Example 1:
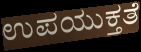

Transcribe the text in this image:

ಉಪಯುಕ್ತತೆ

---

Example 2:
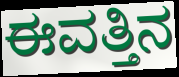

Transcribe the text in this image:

ಈವತ್ತಿನ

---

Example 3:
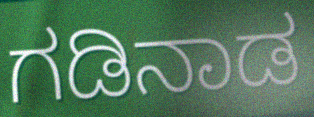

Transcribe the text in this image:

ಗಡಿನಾಡ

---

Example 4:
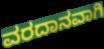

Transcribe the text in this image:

ವರದಾನವಾಗಿ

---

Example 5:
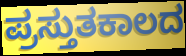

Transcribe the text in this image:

ಪ್ರಸ್ತುತಕಾಲದ